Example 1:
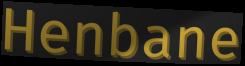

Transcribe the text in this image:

Henbane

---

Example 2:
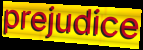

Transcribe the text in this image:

prejudice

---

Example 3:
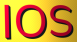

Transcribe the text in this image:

IOS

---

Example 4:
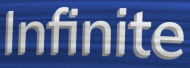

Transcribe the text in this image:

Infinite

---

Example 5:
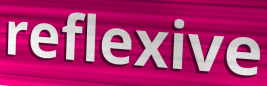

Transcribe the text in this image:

reflexive